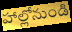
హాల్లోనుండి